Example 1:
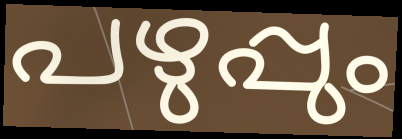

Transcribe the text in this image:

പഴുപ്പും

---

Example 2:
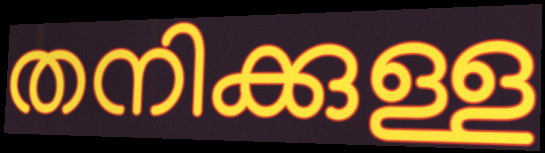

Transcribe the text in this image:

തനിക്കുള്ള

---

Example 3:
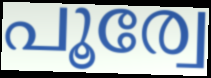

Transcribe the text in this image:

പൂര്വേ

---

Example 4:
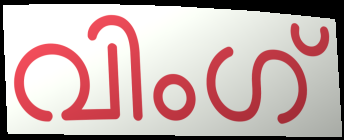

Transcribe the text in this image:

വിംഗ്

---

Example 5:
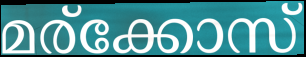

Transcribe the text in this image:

മര്ക്കോസ്